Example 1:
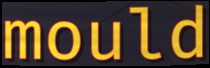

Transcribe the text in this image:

mould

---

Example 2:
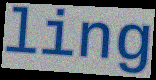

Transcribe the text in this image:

ling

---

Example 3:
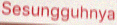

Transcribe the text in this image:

Sesungguhnya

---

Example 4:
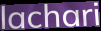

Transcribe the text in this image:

lachari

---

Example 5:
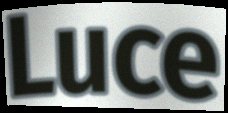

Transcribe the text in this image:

Luce